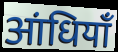
आंधियाँ